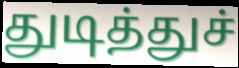
துடித்துச்